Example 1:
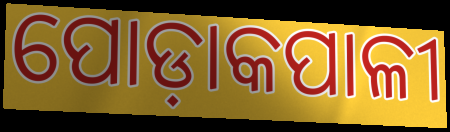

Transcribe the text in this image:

ପୋଡ଼ାକପାଳୀ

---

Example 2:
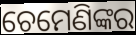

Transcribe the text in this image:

ଚେମେଣିଙ୍କର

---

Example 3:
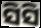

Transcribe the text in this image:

ସିସି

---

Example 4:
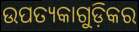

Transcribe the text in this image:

ଉପତ୍ୟକାଗୁଡ଼ିକର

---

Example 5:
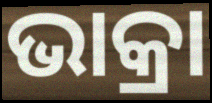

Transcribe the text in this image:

ଭାକ୍ରା